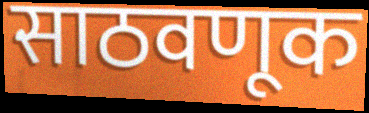
साठवणूक